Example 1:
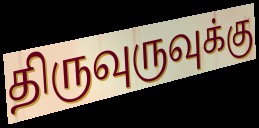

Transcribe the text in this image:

திருவுருவுக்கு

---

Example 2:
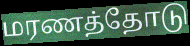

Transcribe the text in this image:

மரணத்தோடு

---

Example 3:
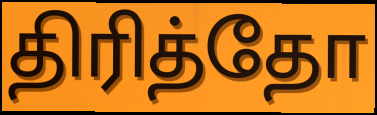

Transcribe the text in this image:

திரித்தோ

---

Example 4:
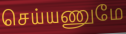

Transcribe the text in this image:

செய்யணுமே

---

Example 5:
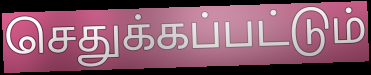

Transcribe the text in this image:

செதுக்கப்பட்டும்